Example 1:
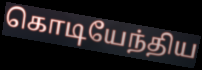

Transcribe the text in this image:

கொடியேந்திய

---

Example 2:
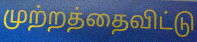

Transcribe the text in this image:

முற்றத்தைவிட்டு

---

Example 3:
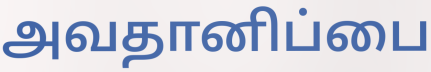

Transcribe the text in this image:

அவதானிப்பை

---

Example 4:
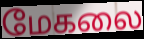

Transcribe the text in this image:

மேகலை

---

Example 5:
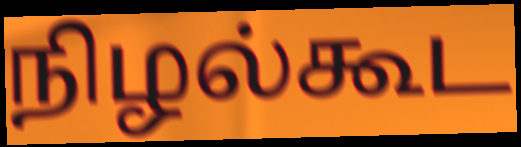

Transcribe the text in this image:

நிழல்கூட